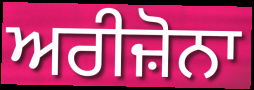
ਅਰੀਜ਼ੋਨਾ